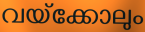
വയ്‌ക്കോലും